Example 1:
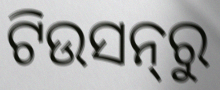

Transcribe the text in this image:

ଟିଉସନ୍‌ରୁ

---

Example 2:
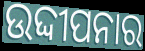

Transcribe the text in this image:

ଉଦ୍ଦୀପନାର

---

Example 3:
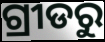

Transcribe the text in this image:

ଗ୍ରୀଡରୁ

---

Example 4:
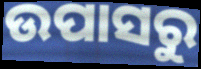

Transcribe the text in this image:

ଉପାସରୁ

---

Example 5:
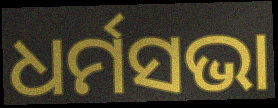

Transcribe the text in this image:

ଧର୍ମସଭା